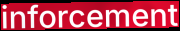
inforcement